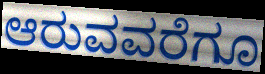
ಆರುವವರೆಗೂ